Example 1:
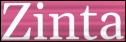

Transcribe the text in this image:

Zinta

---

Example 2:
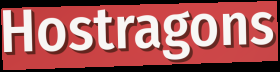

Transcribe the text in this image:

Hostragons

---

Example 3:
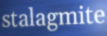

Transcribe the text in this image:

stalagmite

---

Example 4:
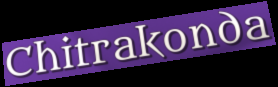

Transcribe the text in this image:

Chitrakonda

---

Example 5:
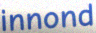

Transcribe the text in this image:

innond